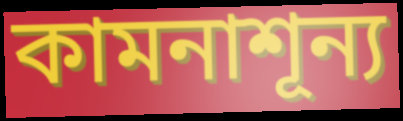
কামনাশূন্য